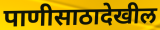
पाणीसाठादेखील